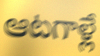
ఆటగాళ్లే